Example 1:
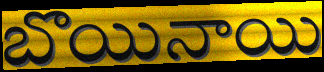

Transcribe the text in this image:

బొయినాయి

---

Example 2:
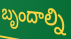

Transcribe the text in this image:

బృందాల్ని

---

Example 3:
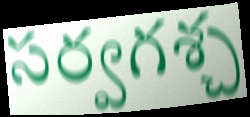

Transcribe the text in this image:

సర్వగశ్చ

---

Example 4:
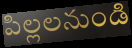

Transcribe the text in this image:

పిల్లలనుండి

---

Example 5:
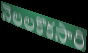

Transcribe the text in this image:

నెలలకొకసారి